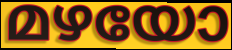
മഴയോ